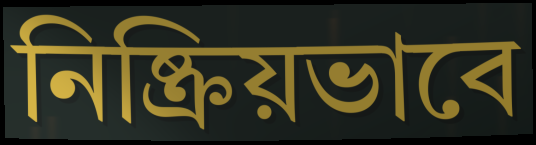
নিষ্ক্রিয়ভাবে